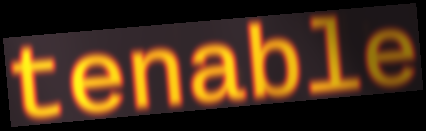
tenable